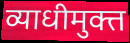
व्याधीमुक्त